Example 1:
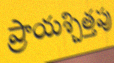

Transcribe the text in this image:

ప్రాయశ్చిత్తపు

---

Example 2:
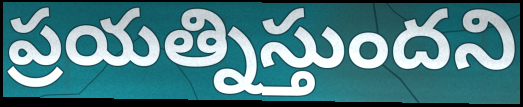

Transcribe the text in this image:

ప్రయత్నిస్తుందని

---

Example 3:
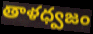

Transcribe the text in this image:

తాళధ్వజం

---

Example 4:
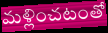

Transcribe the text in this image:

మళ్లించటంతో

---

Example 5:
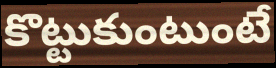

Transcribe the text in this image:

కొట్టుకుంటుంటే